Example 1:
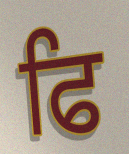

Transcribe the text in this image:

ਫਿ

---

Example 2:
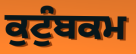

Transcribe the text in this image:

ਕੁਟੁੰਬਕਮ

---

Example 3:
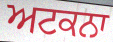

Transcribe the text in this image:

ਅਟਕਨਾ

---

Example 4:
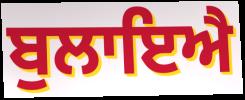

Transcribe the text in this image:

ਬੁਲਾਇਐ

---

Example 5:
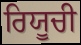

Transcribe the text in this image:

ਰਿਯੂਚੀ